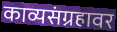
काव्यसंग्रहावर